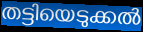
തട്ടിയെടുക്കൽ